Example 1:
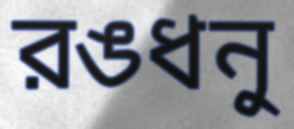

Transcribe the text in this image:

রঙধনু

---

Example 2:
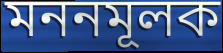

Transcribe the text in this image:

মননমূলক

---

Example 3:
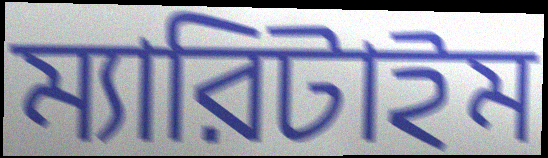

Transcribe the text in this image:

ম্যারিটাইম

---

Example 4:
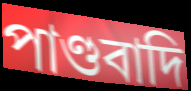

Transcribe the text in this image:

পাণ্ডবাদি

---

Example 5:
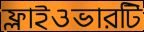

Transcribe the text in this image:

ফ্লাইওভারটি